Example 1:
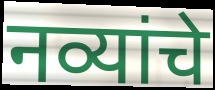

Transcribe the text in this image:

नव्यांचे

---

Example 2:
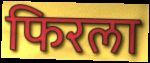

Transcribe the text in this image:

फिरला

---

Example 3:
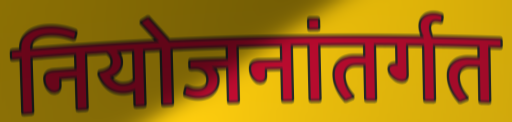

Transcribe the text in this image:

नियोजनांतर्गत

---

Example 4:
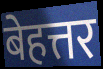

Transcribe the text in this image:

बेहत्तर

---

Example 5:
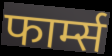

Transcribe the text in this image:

फार्म्स